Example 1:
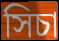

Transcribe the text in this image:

সিচা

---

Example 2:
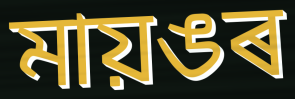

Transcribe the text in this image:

মায়ঙৰ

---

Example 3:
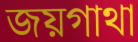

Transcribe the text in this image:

জয়গাথা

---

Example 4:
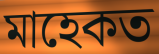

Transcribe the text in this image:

মাহেকত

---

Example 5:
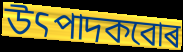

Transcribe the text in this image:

উৎপাদকবোৰ